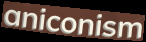
aniconism